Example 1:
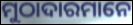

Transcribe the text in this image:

ମୁଠାଦାରମାନେ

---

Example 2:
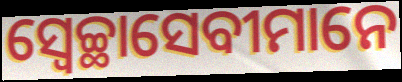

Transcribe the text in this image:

ସ୍ୱେଚ୍ଛାସେବୀମାନେ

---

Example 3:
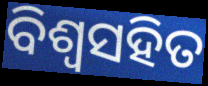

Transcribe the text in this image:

ବିଶ୍ଵସହିତ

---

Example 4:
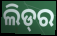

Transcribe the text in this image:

ଲିଡ୍‌ର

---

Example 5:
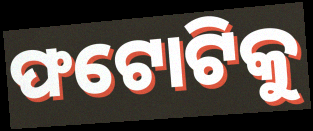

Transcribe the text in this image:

ଫଟୋଟିକୁ